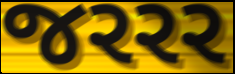
જરરર